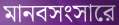
মানবসংসারে